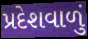
પ્રદેશવાળું